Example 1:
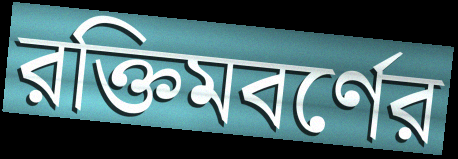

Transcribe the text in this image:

রক্তিমবর্ণের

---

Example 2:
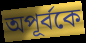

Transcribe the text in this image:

অপূর্বকে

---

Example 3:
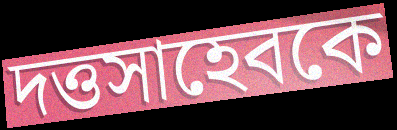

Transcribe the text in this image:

দত্তসাহেবকে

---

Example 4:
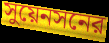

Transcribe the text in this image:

সুয়েনসনের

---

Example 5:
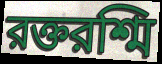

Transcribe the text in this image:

রক্তরশ্মি